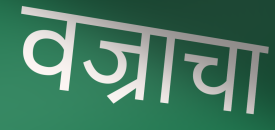
वज्राचा